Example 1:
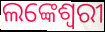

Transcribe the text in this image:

ଲଙ୍କେଶ୍ଵରୀ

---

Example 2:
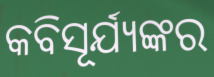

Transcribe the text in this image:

କବିସୂର୍ଯ୍ୟଙ୍କର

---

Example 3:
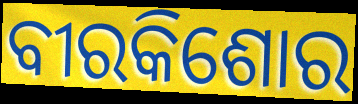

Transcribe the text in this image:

ବୀରକିଶୋର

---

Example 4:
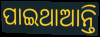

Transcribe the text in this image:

ପାଇଥାଆନ୍ତି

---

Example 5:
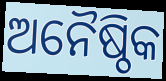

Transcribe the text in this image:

ଅନୈଷ୍ଠିକ